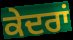
ਕੇਦਰਾਂ